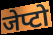
जेप्टो